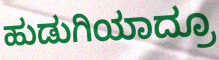
ಹುಡುಗಿಯಾದ್ರೂ